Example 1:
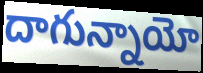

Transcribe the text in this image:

దాగున్నాయో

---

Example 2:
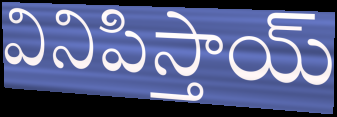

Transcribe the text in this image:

వినిపిస్తాయ్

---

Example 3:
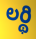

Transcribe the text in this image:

లర్థి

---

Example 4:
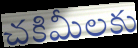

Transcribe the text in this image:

చకిమీలకు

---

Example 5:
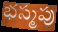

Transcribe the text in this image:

భస్మపు